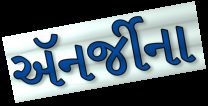
ઍનર્જીના